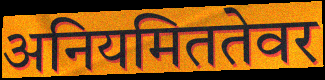
अनियमिततेवर